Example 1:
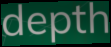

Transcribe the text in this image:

depth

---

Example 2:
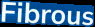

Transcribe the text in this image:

Fibrous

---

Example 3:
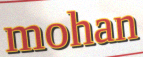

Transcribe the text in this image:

mohan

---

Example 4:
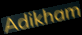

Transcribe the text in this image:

Adikham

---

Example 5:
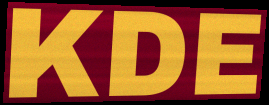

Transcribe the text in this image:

KDE